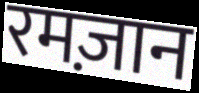
रमज़ान